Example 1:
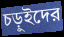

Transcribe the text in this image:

চড়ুইদের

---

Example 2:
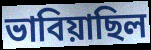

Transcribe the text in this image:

ভাবিয়াছিল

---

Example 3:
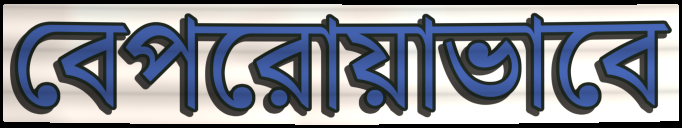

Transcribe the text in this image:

বেপরোয়াভাবে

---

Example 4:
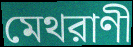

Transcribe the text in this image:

মেথরাণী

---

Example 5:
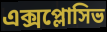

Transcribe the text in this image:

এক্সপ্লোসিভ